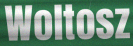
Woltosz